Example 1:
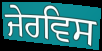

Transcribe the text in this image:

ਜੇਰਵਿਸ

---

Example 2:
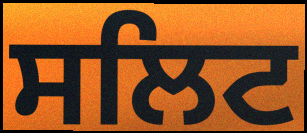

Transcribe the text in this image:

ਸਲਿਟ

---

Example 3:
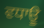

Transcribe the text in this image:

ਵਧਾਊ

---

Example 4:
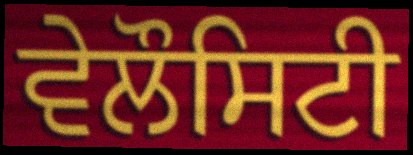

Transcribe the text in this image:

ਵੇਲੌਸਿਟੀ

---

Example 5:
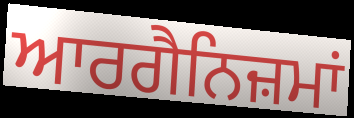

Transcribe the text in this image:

ਆਰਗੈਨਿਜ਼ਮਾਂ